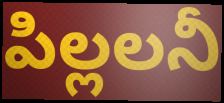
పిల్లలనీ